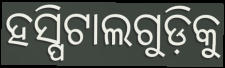
ହସ୍ପିଟାଲଗୁଡ଼ିକୁ